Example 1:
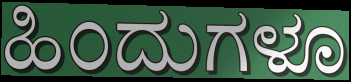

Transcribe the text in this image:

ಹಿಂದುಗಳೂ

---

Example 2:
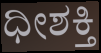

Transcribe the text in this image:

ಧೀಶಕ್ತಿ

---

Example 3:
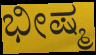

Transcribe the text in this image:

ಭೀಷ್ಮ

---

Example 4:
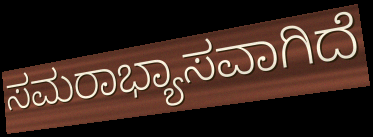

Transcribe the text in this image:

ಸಮರಾಭ್ಯಾಸವಾಗಿದೆ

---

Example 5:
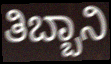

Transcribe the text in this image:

ತಿಬ್ಬಾನಿ